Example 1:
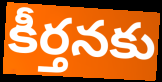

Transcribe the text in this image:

కీర్తనకు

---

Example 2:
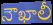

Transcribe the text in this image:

నౌఖాలీ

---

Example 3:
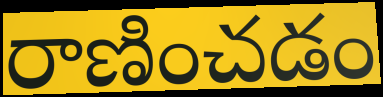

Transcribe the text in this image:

రాణించడం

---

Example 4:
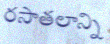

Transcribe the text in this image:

రసాతలాన్ని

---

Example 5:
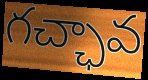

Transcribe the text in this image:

గచ్ఛావ